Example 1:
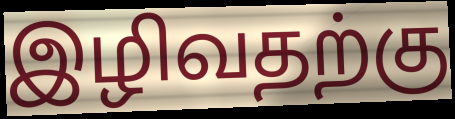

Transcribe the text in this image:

இழிவதற்கு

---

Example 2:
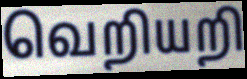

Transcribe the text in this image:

வெறியறி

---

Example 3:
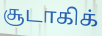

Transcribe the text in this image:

சூடாகிக்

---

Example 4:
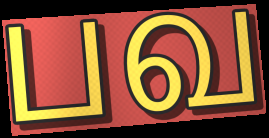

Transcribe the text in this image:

பவ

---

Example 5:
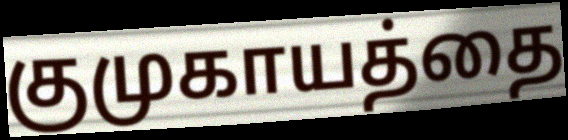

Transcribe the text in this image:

குமுகாயத்தை